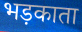
भड़काता